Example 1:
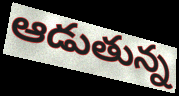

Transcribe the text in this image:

ఆడుతున్న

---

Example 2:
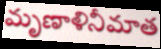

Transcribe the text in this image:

మృణాళినీమాత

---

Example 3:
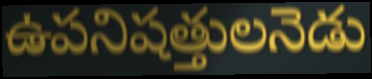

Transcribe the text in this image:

ఉపనిషత్తులనెడు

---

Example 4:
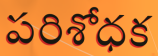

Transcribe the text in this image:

పరిశోధక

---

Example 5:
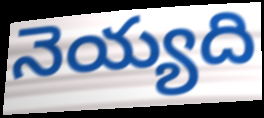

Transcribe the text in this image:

నెయ్యది